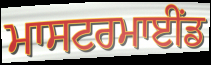
ਮਾਸਟਰਮਾਈੰਡ